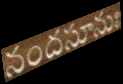
నందసూనుః